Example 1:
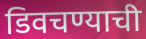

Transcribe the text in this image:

डिवचण्याची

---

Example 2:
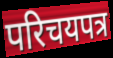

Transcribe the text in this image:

परिचयपत्र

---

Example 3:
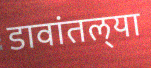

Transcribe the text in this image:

डावांतल्या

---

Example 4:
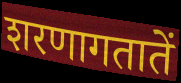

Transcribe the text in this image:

शरणागतातें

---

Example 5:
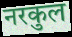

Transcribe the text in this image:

नरकुल